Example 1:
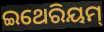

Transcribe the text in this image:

ଇଥେରିୟମ୍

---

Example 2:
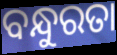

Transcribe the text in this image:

ବନ୍ଧୁରତା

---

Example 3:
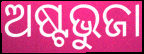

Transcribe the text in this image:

ଅଷ୍ଟଭୁଜା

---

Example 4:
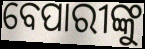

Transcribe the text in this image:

ବେପାରୀଙ୍କୁ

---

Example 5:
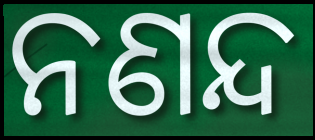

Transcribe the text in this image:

ନଣନ୍ଦ